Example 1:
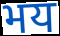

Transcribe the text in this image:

भय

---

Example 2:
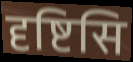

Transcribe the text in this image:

दृष्टिसि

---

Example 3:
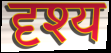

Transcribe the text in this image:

दृश्य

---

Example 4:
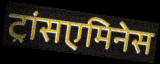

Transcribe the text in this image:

ट्रांसएमिनेस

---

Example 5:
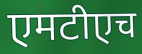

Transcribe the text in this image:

एमटीएच